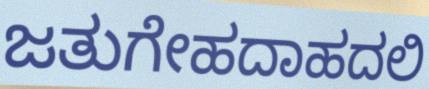
ಜತುಗೇಹದಾಹದಲಿ